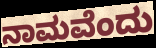
ನಾಮವೆಂದು